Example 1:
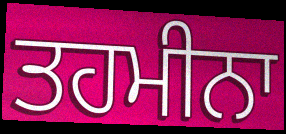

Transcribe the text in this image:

ਤਹਮੀਨਾ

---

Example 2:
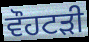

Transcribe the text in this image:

ਵੌਹਟੜੀ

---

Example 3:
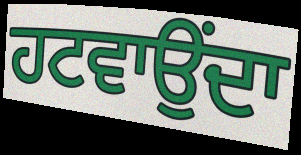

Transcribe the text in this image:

ਹਟਵਾਉਂਦਾ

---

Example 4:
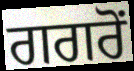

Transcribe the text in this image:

ਗਗਰੋਂ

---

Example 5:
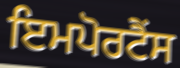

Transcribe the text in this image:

ਇਮਪੋਰਟੈਂਸ